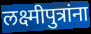
लक्ष्मीपुत्रांना